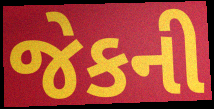
જેકની